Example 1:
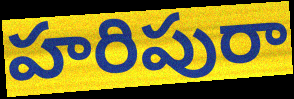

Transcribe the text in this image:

హరిపురా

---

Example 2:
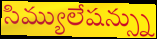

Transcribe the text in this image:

సిమ్యులేషన్స్ను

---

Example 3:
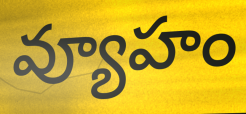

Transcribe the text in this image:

వ్యూహం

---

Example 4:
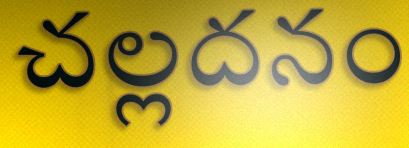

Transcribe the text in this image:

చల్లదనం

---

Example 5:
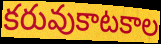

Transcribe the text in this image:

కరువుకాటకాల